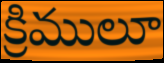
క్రిములూ